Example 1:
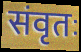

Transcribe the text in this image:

संवृतः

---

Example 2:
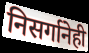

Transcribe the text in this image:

निसर्गानेही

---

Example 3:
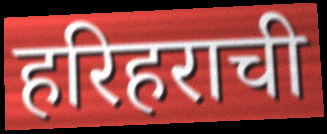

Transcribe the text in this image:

हरिहराची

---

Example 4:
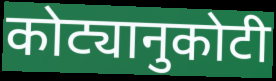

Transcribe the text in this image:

कोट्यानुकोटी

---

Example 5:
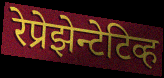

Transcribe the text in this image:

रेप्रेझेन्टेटिव्ह